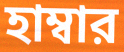
হাম্বার